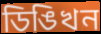
ডিঙিখন